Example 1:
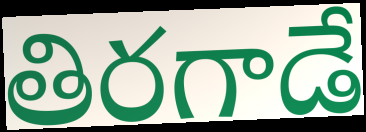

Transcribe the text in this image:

తిరగాడే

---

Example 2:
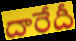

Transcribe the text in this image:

దారేదీ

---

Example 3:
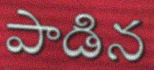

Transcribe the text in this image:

పాడిన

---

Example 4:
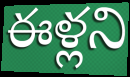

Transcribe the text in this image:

ఈళ్లని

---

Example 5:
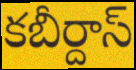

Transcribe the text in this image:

కబీర్దాస్